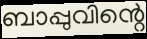
ബാപ്പുവിന്റെ